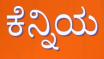
ಕೆನ್ನಿಯ